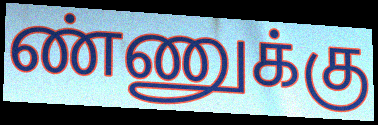
ண்ணுக்கு